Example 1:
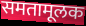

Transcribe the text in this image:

समतामूलक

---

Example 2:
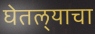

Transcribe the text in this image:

घेतल्याचा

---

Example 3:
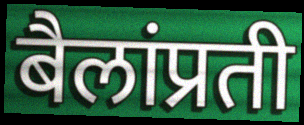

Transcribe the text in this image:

बैलांप्रती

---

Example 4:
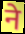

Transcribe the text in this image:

ने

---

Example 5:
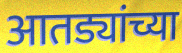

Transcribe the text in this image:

आतड्यांच्या